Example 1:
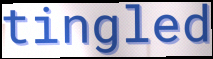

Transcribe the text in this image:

tingled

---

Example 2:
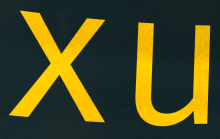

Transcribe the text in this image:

xu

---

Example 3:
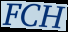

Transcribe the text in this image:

FCH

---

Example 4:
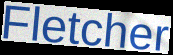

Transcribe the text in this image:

Fletcher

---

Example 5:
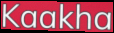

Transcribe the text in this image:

Kaakha